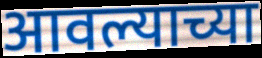
आवल्याच्या